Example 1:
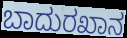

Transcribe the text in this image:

ಬಾದುರಖಾನ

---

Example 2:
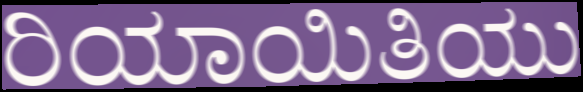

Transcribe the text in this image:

ರಿಯಾಯಿತಿಯು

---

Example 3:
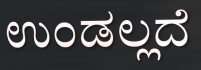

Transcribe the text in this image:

ಉಂಡಲ್ಲದೆ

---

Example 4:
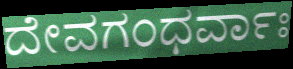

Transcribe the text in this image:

ದೇವಗಂಧರ್ವಾಃ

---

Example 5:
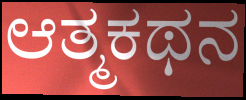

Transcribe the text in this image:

ಆತ್ಮಕಥನ